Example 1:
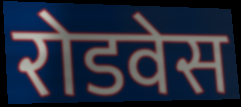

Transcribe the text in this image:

रोडवेस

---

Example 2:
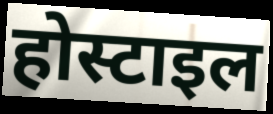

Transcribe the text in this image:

होस्टाइल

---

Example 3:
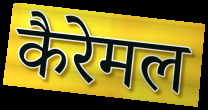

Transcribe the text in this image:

कैरेमल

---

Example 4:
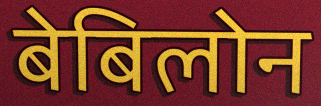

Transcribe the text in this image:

बेबिलोन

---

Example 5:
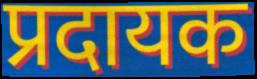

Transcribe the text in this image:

प्रदायक